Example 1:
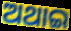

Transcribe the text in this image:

ଅଥାଇ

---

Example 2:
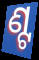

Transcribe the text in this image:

ଣ୍ଟ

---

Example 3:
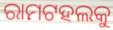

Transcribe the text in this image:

ରାମଟହଲକୁ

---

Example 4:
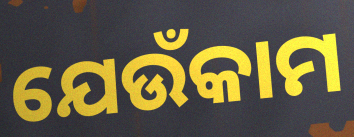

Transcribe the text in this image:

ଯେଉଁକାମ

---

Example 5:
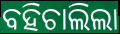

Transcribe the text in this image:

ବହିଚାଲିଲା